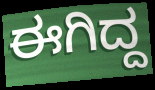
ಈಗಿದ್ದ